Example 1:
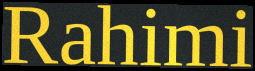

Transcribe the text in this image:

Rahimi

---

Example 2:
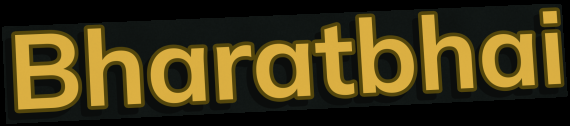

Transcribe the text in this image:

Bharatbhai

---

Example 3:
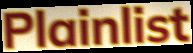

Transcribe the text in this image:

Plainlist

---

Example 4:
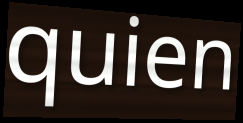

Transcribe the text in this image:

quien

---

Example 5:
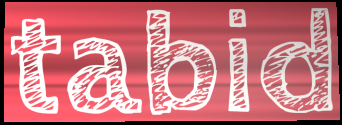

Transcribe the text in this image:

tabid